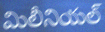
మిలీనియల్